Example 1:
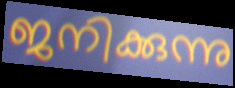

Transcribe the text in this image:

ജനിക്കുന്നു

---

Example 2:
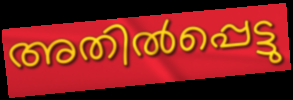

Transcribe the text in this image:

അതിൽപ്പെട്ടു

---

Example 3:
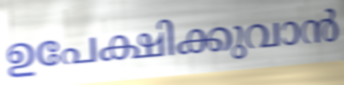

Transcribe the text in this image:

ഉപേക്ഷിക്കുവാൻ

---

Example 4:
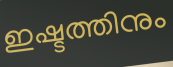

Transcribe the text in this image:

ഇഷ്ടത്തിനും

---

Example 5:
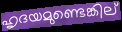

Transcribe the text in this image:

ഹൃദയമുണ്ടെങ്കില്